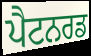
ਪੈਟਨਰਡ